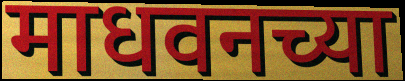
माधवनच्या